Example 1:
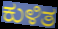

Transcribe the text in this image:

ಕುಳಿತ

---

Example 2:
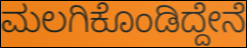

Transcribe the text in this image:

ಮಲಗಿಕೊಂಡಿದ್ದೇನೆ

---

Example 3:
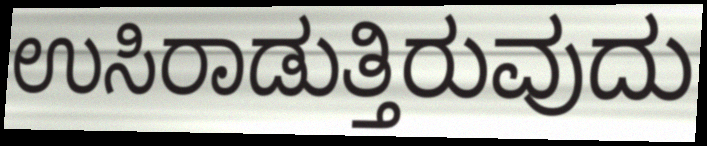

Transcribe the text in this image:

ಉಸಿರಾಡುತ್ತಿರುವುದು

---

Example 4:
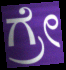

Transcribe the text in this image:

ಗ್ರೇ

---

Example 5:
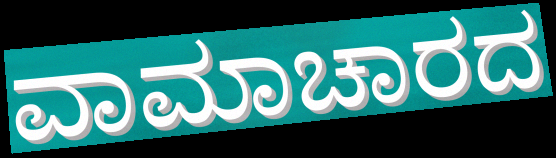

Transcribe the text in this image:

ವಾಮಾಚಾರದ